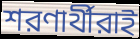
শরণার্থীরাই